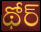
థోర్